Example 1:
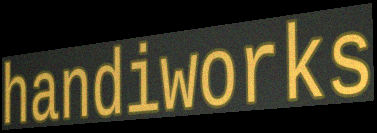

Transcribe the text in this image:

handiworks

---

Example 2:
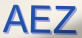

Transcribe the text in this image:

AEZ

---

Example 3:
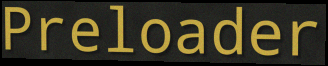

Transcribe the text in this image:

Preloader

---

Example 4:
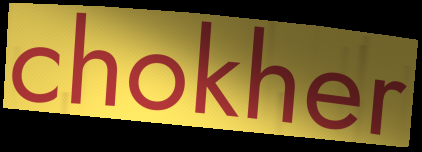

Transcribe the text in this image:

chokher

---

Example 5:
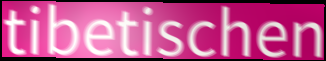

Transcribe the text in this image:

tibetischen